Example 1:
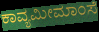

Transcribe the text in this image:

ಕಾವ್ಯಮೀಮಾಂಸೆ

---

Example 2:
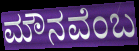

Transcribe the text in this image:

ಮೌನವೆಂಬ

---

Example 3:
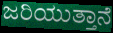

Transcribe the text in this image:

ಜರಿಯುತ್ತಾನೆ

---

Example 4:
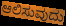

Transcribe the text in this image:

ಆಲಿಸುವುದು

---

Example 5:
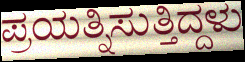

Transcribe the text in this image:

ಪ್ರಯತ್ನಿಸುತ್ತಿದ್ದಳು